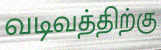
வடிவத்திற்கு